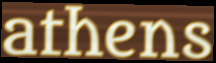
athens